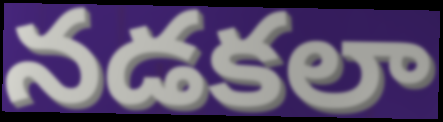
నడకలా